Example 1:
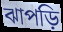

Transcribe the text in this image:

ঝাপড়ি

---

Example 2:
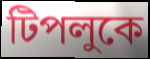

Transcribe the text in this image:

টিপলুকে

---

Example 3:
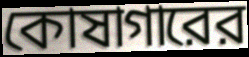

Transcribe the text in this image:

কোষাগারের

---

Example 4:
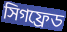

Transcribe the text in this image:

সিগফ্রেড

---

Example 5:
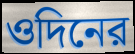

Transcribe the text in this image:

ওদিনের